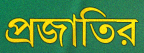
প্রজাতির